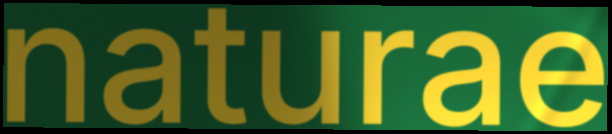
naturae